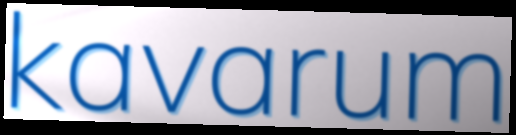
kavarum